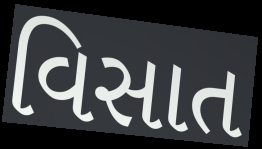
વિસાત